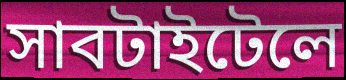
সাবটাইটেলে